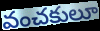
వంచకులూ